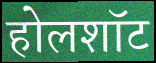
होलशॉट